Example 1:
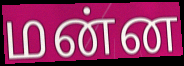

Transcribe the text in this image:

மன்ன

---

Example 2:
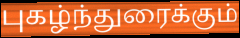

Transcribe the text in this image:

புகழ்ந்துரைக்கும்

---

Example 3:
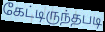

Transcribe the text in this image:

கேட்டிருந்தபடி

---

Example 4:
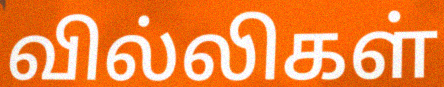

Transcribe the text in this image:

வில்லிகள்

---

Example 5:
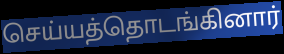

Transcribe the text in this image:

செய்யத்தொடங்கினார்